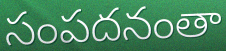
సంపదనంతా